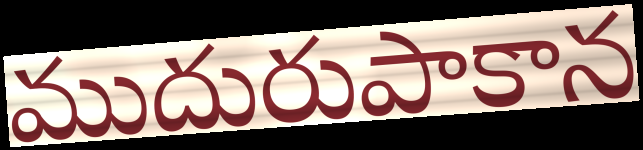
ముదురుపాకాన